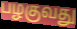
பழகுவது